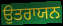
ਉਤਰਾਯਨ